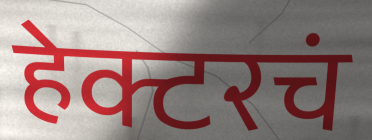
हेक्टरचं